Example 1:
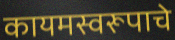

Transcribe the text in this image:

कायमस्वरूपाचे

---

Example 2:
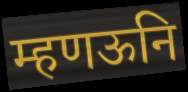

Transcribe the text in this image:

म्हणऊनि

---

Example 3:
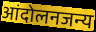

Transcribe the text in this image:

आंदोलनजन्य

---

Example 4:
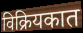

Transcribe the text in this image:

विक्रियकात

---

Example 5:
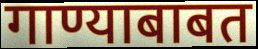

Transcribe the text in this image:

गाण्याबाबत